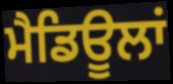
ਮੈਡਿਊਲਾਂ